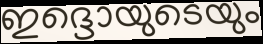
ഇദ്ദൊയുടെയും